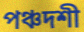
পঞ্চদশী